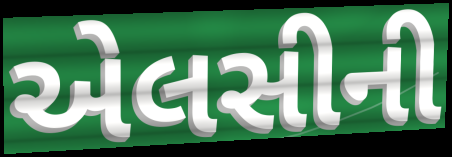
એલસીની